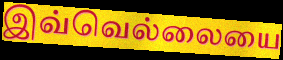
இவ்வெல்லையை